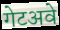
गेटअवे